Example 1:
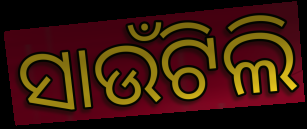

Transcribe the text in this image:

ସାଉଁଟିଲି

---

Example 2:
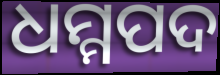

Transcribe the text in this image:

ଧମ୍ମପଦ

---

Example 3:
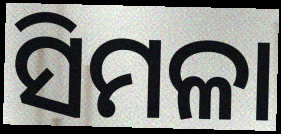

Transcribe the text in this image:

ସିମଳା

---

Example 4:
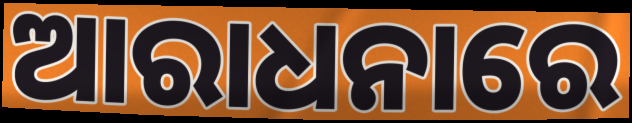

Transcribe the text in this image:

ଆରାଧନାରେ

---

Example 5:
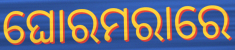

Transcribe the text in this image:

ଘୋରମରାରେ